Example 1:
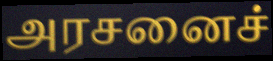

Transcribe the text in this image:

அரசனைச்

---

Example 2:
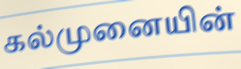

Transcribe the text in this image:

கல்முனையின்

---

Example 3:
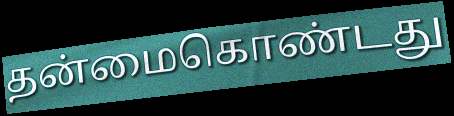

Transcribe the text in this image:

தன்மைகொண்டது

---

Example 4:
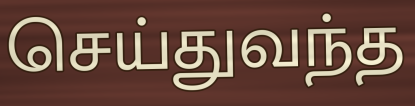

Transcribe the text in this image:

செய்துவந்த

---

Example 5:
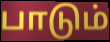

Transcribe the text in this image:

பாடும்